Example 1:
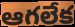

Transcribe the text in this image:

ఆగలేక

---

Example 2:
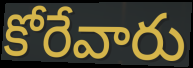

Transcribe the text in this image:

కోరేవారు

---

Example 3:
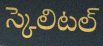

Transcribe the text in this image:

స్కెలిటల్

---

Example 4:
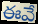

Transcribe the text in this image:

ఈవే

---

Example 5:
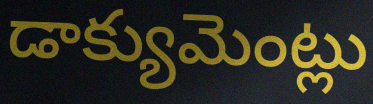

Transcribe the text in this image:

డాక్యుమెంట్లు